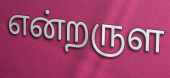
என்றருள